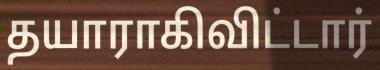
தயாராகிவிட்டார்